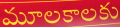
మూలకాలకు